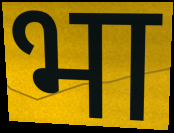
भा